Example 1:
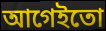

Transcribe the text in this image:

আগেইতো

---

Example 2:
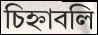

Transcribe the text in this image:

চিহ্নাবলি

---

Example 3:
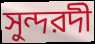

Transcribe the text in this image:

সুন্দরদী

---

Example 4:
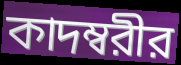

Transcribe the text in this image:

কাদম্বরীর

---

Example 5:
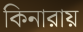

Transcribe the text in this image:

কিনারায়